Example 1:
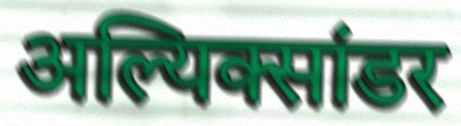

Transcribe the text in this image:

अल्यिक्सांडर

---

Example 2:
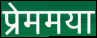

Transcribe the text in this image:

प्रेममया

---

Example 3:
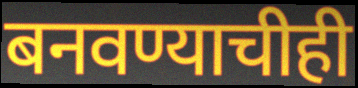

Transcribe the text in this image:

बनवण्याचीही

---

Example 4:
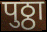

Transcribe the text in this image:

पुठ्ठा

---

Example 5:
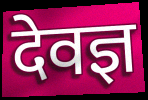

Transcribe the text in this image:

देवज्ञ